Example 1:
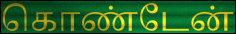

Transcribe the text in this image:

கொண்டேன்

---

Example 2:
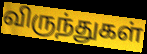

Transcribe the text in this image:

விருந்துகள்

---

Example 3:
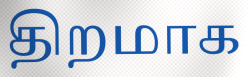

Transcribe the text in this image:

திறமாக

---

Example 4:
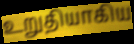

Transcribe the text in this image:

உறுதியாகிய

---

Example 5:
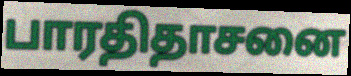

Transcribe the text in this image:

பாரதிதாசனை